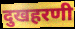
दुखहरणी